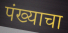
पंख्याचा